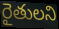
రైతులని